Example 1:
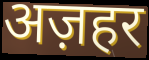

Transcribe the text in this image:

अज़हर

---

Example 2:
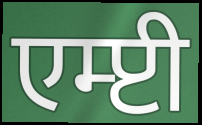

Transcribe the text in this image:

एम्प्टी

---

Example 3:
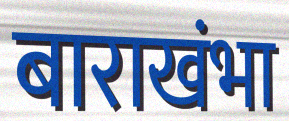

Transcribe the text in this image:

बाराखंभा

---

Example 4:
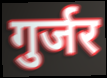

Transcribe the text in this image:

गुर्जर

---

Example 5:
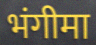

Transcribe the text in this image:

भंगीमा